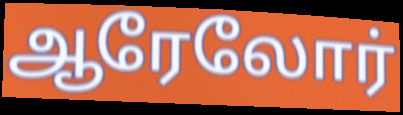
ஆரேலோர்